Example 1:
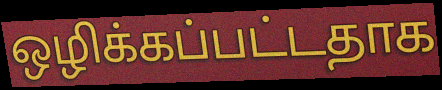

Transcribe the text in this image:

ஒழிக்கப்பட்டதாக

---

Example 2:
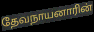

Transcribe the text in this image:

தேவநாயனாரின்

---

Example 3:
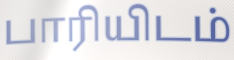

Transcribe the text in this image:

பாரியிடம்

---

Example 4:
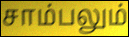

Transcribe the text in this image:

சாம்பலும்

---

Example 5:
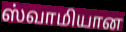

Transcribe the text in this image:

ஸ்வாமியான